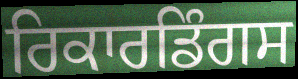
ਰਿਕਾਰਡਿੰਗਸ